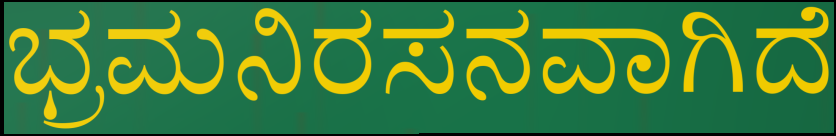
ಭ್ರಮನಿರಸನವಾಗಿದೆ